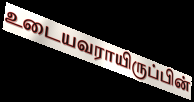
உடையவராயிருப்பின்